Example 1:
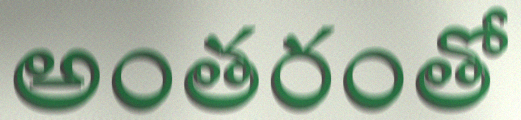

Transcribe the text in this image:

అంతరంతో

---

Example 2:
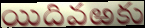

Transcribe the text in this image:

యిదివఱకు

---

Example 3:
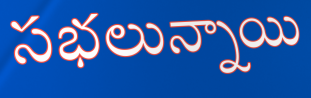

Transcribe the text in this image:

సభలున్నాయి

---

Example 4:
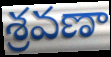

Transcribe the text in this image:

శ్రవణా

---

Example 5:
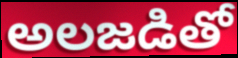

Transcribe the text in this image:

అలజడితో